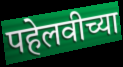
पहेलवीच्या